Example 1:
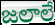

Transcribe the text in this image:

జలాలే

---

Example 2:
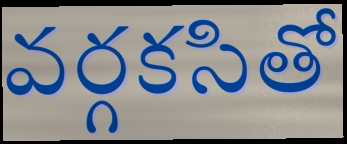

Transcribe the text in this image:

వర్గకసితో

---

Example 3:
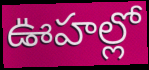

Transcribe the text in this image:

ఊహల్లో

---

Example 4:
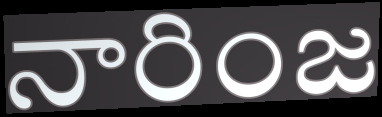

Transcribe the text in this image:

నారింజ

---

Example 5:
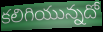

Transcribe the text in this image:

కలిగియున్నదో